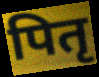
पितृ